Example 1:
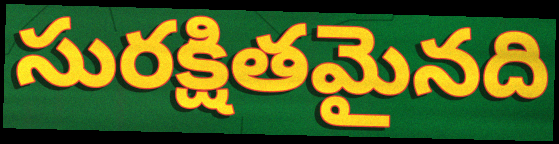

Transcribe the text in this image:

సురక్షితమైనది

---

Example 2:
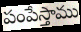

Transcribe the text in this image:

పంపేస్తాము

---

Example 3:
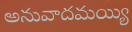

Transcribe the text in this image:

అనువాదమయ్యి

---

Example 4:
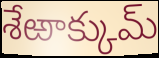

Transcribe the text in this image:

శేఱాక్కుమ్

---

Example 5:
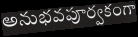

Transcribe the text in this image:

అనుభవపూర్వకంగా